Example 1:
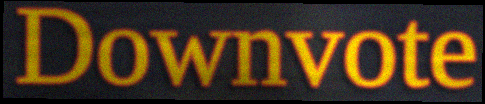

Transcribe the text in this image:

Downvote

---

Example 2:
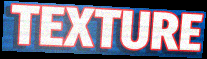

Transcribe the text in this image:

TEXTURE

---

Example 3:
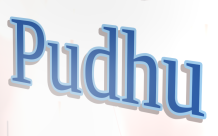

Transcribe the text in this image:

Pudhu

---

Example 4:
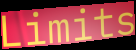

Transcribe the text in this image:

Limits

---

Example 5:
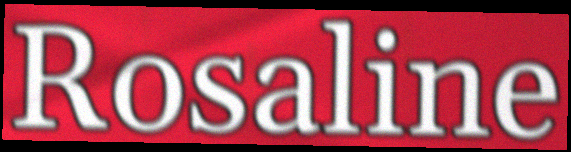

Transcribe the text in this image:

Rosaline